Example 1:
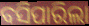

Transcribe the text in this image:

ବସିପାରିଲା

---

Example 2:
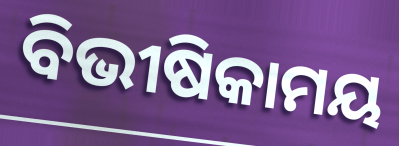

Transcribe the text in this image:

ବିଭୀଷିକାମୟ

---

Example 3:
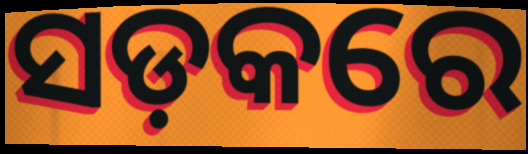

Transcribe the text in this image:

ସଡ଼କରେ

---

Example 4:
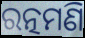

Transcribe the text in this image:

ରତ୍ନମଣି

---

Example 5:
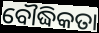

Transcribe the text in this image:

ବୌଦ୍ଧିକତା